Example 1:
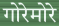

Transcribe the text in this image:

गोरेमोरे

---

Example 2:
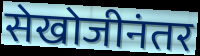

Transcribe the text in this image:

सेखोजीनंतर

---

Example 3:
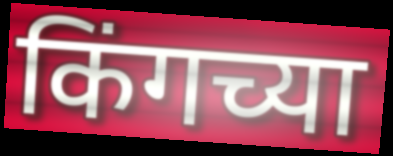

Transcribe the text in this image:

किंगच्या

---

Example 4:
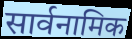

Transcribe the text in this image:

सार्वनामिक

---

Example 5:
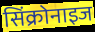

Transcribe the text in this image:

सिंक्रोनाइज